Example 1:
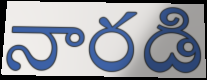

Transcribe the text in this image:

నారడి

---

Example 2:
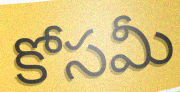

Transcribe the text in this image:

కోసమీ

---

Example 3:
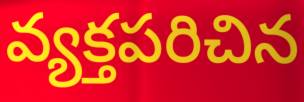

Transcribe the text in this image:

వ్యక్తపరిచిన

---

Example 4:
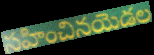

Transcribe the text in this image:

సహించినయెడల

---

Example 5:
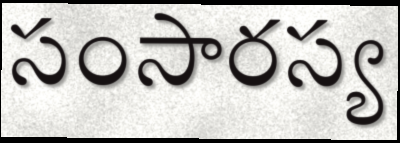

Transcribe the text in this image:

సంసారస్య